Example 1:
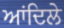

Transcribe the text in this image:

ਆਂਦਿਲੇ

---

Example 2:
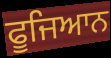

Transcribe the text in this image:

ਫੂਜਿਆਨ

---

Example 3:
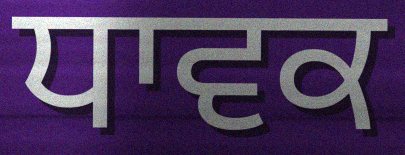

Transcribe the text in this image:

ਧਾਵਕ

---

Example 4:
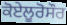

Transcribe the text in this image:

ਕੋਏਲੂਰੋਸੌਰ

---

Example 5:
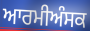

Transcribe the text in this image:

ਆਰਮੀਅੰਸਕ